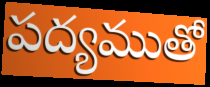
పద్యముతో